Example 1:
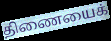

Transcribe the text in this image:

திணையைக்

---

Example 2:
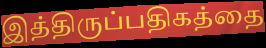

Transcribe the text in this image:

இத்திருப்பதிகத்தை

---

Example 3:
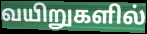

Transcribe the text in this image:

வயிறுகளில்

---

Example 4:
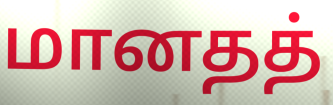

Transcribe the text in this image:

மானதத்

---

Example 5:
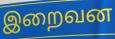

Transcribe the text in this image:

இறைவன